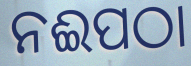
ନଈପଠା